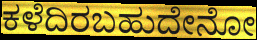
ಕಳೆದಿರಬಹುದೇನೋ